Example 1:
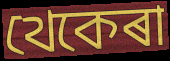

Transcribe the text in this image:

থেকেৰা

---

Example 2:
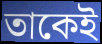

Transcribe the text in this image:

তাকেই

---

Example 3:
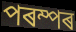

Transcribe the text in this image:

পৰম্পৰ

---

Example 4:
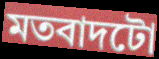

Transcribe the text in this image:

মতবাদটো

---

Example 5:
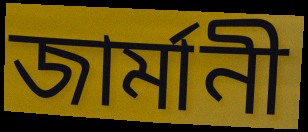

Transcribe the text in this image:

জাৰ্মানী